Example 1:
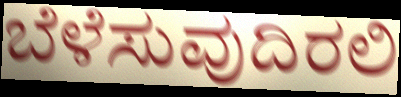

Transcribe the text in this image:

ಬೆಳೆಸುವುದಿರಲಿ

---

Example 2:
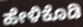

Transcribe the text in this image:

ಹೇಳಿಕೊಡಿ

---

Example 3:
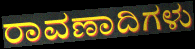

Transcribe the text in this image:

ರಾವಣಾದಿಗಳು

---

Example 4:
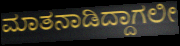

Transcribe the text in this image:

ಮಾತನಾಡಿದ್ದಾಗಲೀ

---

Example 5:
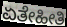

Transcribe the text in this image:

ಏತೇಹೀತಿ